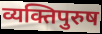
व्यक्तिपुरुष